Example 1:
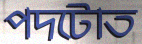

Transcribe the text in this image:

পদটোত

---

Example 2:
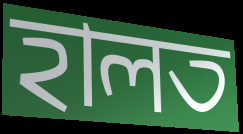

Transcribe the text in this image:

হালত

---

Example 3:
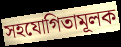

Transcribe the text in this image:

সহযোগিতামূলক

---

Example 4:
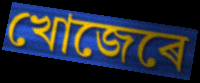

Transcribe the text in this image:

খোজেৰে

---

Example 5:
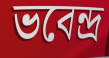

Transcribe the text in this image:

ভবেন্দ্ৰ